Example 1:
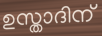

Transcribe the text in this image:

ഉസ്താദിന്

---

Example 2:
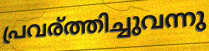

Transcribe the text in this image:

പ്രവര്ത്തിച്ചുവന്നു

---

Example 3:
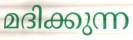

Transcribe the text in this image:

മദിക്കുന്ന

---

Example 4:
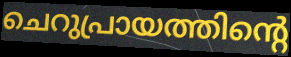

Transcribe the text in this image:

ചെറുപ്രായത്തിന്റെ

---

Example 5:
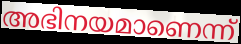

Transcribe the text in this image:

അഭിനയമാണെന്ന്